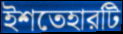
ইশতেহারটি